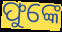
ଫୁଙ୍କେ